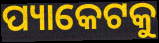
ପ୍ୟାକେଟକୁ